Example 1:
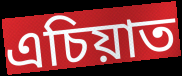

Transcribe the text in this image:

এচিয়াত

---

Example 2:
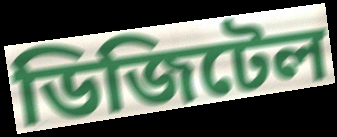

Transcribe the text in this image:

ডিজিটেল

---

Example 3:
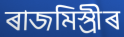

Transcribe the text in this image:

ৰাজমিস্ত্ৰীৰ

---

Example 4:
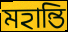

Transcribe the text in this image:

মহান্তি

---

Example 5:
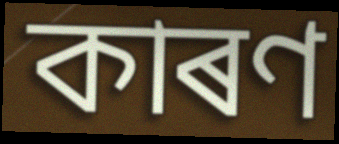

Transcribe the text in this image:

কাৰণ